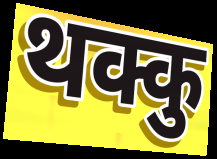
थक्कु